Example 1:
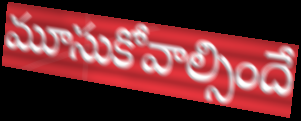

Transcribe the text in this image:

మూసుకోవాల్సిందే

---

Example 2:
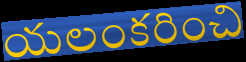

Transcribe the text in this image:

యలంకరించి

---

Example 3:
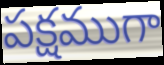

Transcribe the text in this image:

పక్షముగా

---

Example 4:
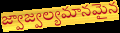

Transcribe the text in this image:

జ్వాజ్వల్యమానమైన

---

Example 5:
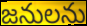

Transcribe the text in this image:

జనులను